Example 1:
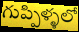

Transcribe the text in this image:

గుప్పిళ్ళలో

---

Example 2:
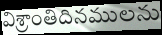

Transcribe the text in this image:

విశ్రాంతిదినములను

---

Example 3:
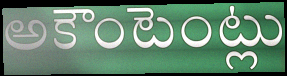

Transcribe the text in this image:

అకౌంటెంట్లు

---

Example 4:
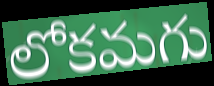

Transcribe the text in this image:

లోకమగు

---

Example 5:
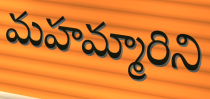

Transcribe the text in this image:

మహమ్మారిని